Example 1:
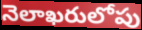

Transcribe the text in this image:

నెలాఖరులోపు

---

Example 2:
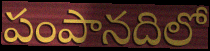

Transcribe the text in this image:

పంపానదిలో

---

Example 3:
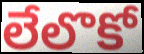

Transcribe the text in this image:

లేలొకో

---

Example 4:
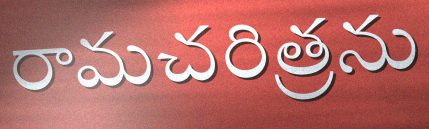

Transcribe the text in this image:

రామచరిత్రను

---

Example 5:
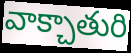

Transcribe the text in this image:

వాక్చాతురి